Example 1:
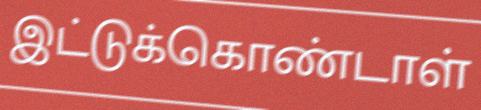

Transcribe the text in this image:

இட்டுக்கொண்டாள்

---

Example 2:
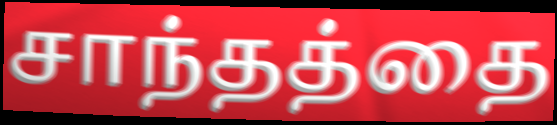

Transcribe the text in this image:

சாந்தத்தை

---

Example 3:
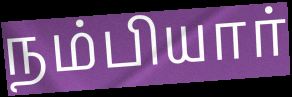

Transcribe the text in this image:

நம்பியார்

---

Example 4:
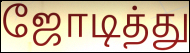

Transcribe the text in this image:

ஜோடித்து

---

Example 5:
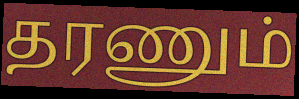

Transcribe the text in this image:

தரணும்